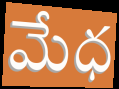
మేధ